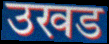
उखड